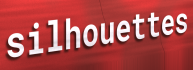
silhouettes